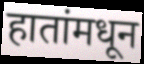
हातांमधून